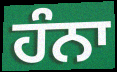
ਹੰਨਾ